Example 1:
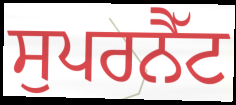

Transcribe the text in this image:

ਸੁਪਰਨੈੱਟ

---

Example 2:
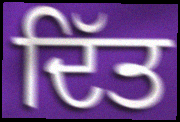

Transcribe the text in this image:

ਦਿੱਤ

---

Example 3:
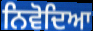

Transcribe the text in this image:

ਨਿਵੋਦਿਆ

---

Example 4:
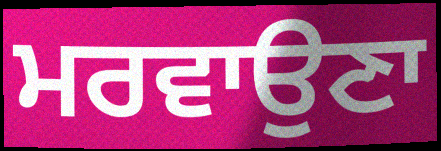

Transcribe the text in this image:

ਮਰਵਾਉਣਾ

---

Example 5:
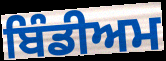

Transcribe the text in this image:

ਬਿੰਡੀਅਮ